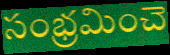
సంభ్రమించె